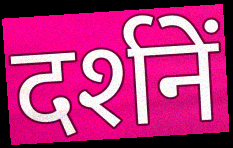
दर्शनें